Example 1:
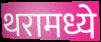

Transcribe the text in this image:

थरामध्ये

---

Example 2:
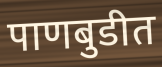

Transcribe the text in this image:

पाणबुडीत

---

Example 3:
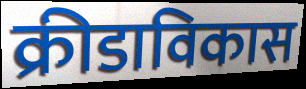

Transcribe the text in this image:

क्रीडाविकास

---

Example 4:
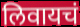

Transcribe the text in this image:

लिवायचं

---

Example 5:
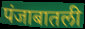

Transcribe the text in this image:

पंजाबातली